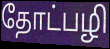
தோட்பழி